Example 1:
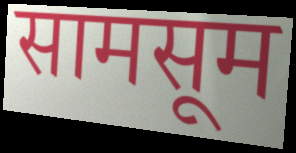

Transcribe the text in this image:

सामसूम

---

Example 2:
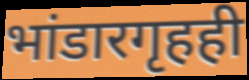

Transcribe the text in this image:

भांडारगृहही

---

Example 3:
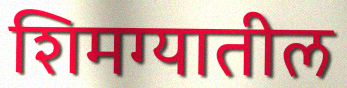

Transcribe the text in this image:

शिमग्यातील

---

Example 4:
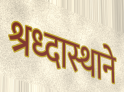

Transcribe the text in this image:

श्रध्दास्थाने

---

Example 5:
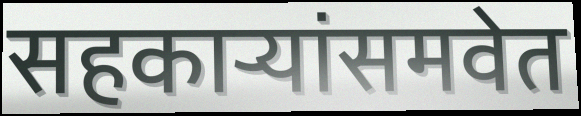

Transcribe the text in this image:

सहकाऱ्यांसमवेत